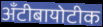
अँटीबायोटीक